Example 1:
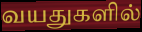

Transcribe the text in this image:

வயதுகளில்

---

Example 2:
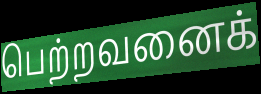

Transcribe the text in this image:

பெற்றவனைக்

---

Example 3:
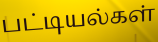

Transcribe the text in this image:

பட்டியல்கள்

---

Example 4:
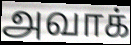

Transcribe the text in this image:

அவாக்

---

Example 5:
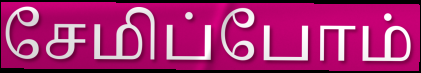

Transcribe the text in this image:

சேமிப்போம்